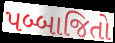
પબ્બાજિતો